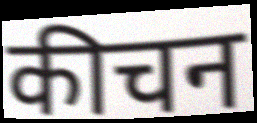
कीचन